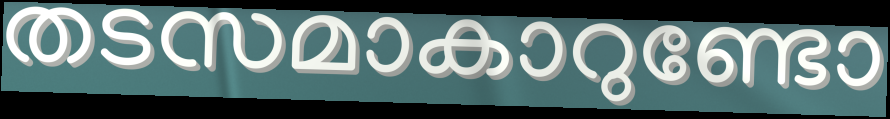
തടസമാകാറുണ്ടോ